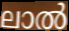
ലാൽ